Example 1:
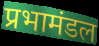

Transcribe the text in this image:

प्रभामंडल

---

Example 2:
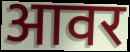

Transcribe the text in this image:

आवर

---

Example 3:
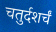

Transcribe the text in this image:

चतुर्दशर्चं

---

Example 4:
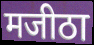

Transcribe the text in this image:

मजीठा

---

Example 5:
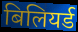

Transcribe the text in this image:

बिलियर्ड